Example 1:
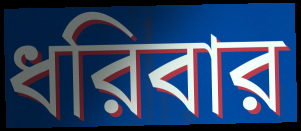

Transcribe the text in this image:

ধরিবার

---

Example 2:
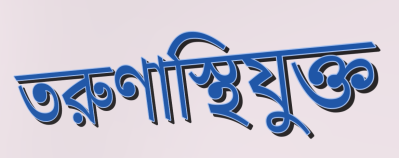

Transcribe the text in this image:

তরুণাস্থিযুক্ত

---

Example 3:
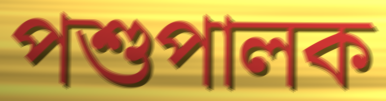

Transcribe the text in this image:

পশুপালক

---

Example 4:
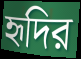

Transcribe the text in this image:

হৃদির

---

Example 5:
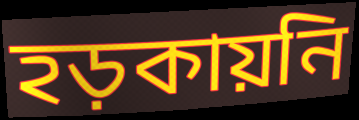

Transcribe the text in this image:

হড়কায়নি